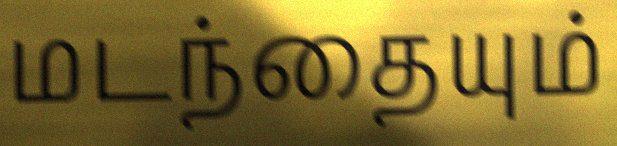
மடந்தையும்